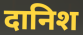
दानिश